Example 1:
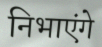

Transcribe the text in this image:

निभाएंगे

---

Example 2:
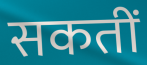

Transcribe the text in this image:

सकतीं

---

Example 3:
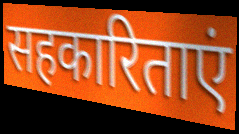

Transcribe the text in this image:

सहकारिताएं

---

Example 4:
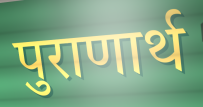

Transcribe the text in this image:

पुराणार्थ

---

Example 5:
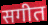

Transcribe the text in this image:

सगीत